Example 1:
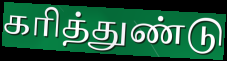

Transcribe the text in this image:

கரித்துண்டு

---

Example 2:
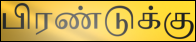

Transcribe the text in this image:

பிரண்டுக்கு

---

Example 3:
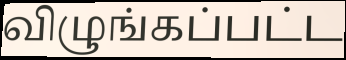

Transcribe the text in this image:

விழுங்கப்பட்ட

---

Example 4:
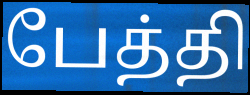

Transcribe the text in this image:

பேத்தி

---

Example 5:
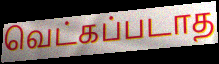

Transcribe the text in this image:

வெட்கப்படாத